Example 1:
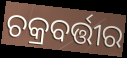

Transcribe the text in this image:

ଚକ୍ରବର୍ତ୍ତୀର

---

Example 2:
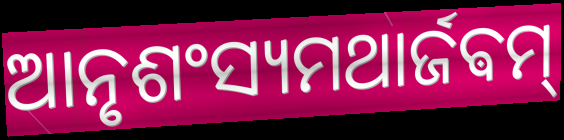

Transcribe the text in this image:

ଆନୃଶଂସ୍ୟମଥାର୍ଜଵମ୍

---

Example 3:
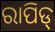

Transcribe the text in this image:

ରାପିଡ୍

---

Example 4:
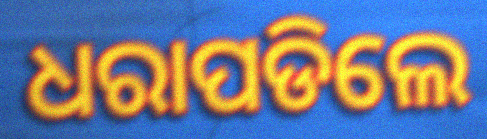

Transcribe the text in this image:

ଧରାପଡିଲେ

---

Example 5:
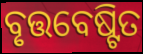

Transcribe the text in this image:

ବୃତ୍ତବେଷ୍ଟିତ